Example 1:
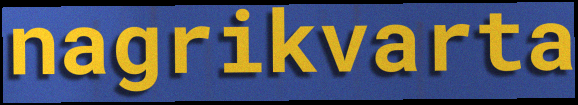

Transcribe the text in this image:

nagrikvarta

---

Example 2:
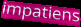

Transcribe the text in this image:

impatiens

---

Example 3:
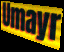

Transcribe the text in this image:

Umayr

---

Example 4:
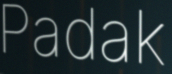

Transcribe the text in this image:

Padak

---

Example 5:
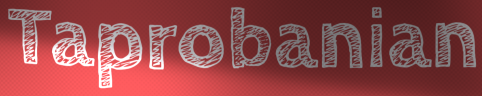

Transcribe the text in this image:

Taprobanian